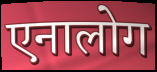
एनालोग